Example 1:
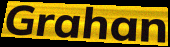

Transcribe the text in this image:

Grahan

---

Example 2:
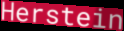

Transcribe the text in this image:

Herstein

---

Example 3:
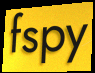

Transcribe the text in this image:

fspy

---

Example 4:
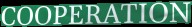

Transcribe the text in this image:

COOPERATION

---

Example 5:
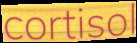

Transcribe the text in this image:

cortisol